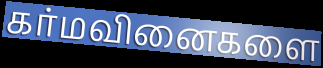
கர்மவினைகளை